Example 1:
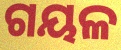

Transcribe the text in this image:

ଗୟଳ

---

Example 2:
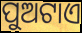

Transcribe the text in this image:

ପୁଅଟାଏ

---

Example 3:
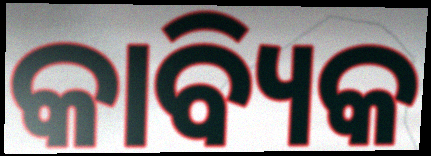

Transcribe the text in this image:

କାବ୍ୟିକ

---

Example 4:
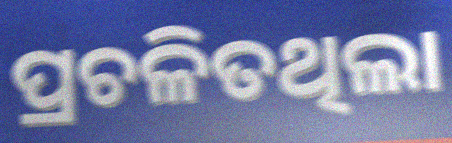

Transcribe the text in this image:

ପ୍ରଚଳିତଥିଲା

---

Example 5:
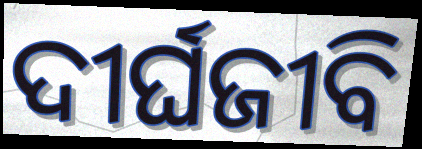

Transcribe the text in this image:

ଦୀର୍ଘଜୀବି